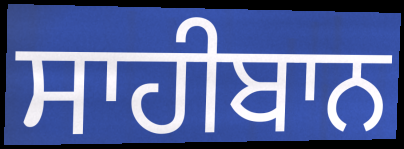
ਸਾਹੀਬਾਨ